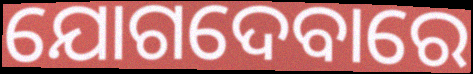
ଯୋଗଦେବାରେ